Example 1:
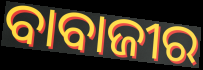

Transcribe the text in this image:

ବାବାଜୀର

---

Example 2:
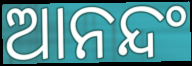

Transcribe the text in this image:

ଆନନ୍ଦଂ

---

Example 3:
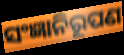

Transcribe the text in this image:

ସଂଜ୍ଞାନିରୂପଣ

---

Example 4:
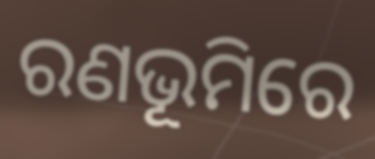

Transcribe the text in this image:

ରଣଭୂମିରେ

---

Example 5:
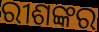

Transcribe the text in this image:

ରୀଶଙ୍କର